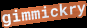
gimmickry